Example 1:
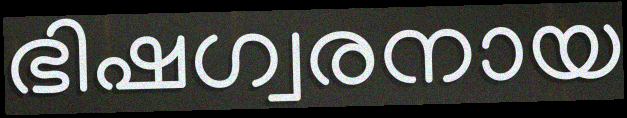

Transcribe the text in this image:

ഭിഷഗ്വരനായ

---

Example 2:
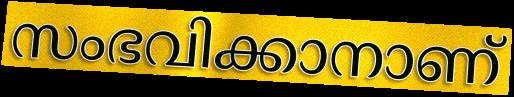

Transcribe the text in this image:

സംഭവിക്കാനാണ്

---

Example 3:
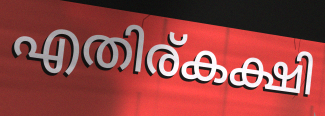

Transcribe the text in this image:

എതിര്കക്ഷി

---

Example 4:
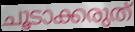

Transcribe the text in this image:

ചൂടാക്കരുത്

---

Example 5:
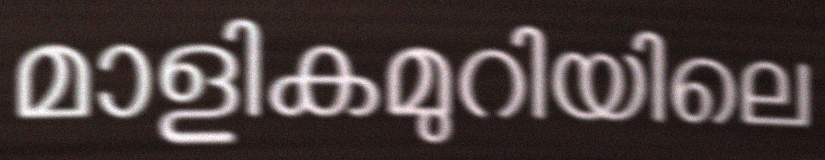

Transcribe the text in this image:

മാളികമുറിയിലെ